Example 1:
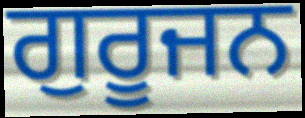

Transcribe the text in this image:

ਗੁਰੂਜਨ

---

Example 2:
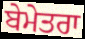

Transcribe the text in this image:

ਬੇਮੇਤਰਾ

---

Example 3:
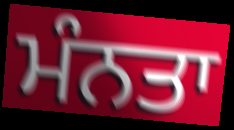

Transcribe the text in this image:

ਮੰਨਤਾ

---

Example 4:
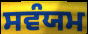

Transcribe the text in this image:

ਸਵੰਯਮ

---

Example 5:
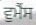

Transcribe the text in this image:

ਵੁਮੈਂਸ